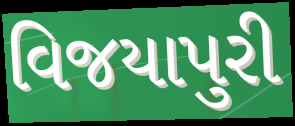
વિજયાપુરી